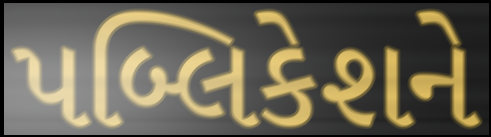
પબ્લિકેશને